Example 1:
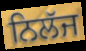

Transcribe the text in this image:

ਨਿਲੱਜ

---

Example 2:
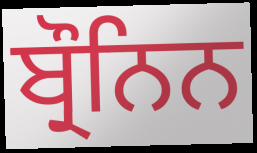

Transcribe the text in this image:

ਬ੍ਰੌਨਿਨ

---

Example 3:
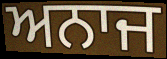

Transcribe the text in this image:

ਅਨਾਜ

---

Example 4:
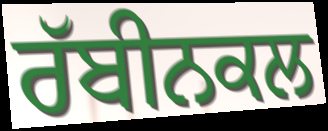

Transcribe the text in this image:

ਰੱਬੀਨਕਲ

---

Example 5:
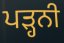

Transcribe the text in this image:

ਪੜ੍ਹਨੀ